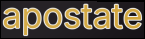
apostate